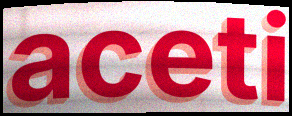
aceti